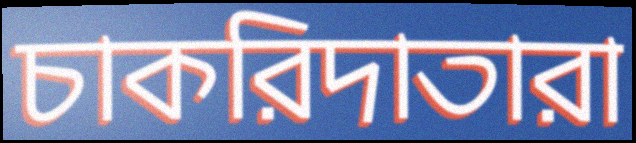
চাকরিদাতারা